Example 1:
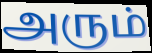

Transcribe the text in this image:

அரும்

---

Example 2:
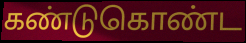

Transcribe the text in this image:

கண்டுகொண்ட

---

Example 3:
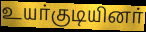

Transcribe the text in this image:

உயர்குடியினர்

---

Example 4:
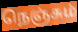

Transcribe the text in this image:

நெஞ்சும்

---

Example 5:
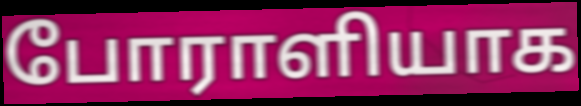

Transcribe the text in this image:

போராளியாக